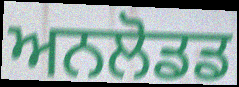
ਅਨਲੋਡਡ